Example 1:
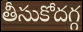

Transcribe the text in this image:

తీసుకోదగ్గ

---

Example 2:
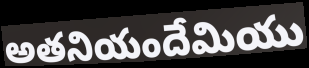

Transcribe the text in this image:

అతనియందేమియు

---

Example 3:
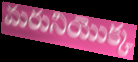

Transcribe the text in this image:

మరునియొక్క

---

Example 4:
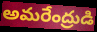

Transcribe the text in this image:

అమరేంద్రుడి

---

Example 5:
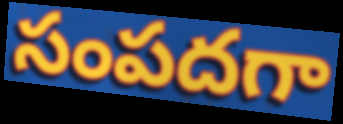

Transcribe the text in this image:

సంపదగా